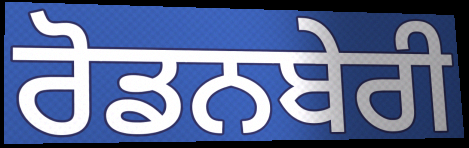
ਰੋਡਨਬੇਰੀ